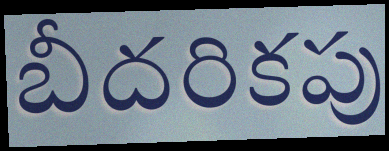
బీదరికపు